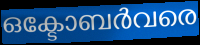
ഒക്ടോബർവരെ